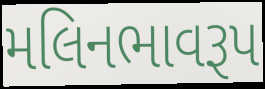
મલિનભાવરૂપ